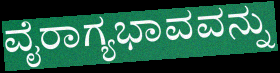
ವೈರಾಗ್ಯಭಾವವನ್ನು